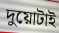
দুয়োটাই